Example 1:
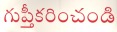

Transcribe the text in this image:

గుప్తీకరించండి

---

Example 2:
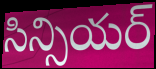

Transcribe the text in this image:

సిన్సియర్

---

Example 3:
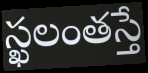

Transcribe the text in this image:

స్ఖలంతస్తే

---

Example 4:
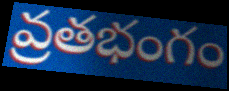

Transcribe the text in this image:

వ్రతభంగం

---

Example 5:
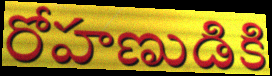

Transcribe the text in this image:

రోహణుడికి